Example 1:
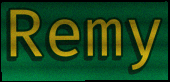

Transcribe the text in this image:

Remy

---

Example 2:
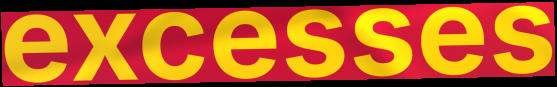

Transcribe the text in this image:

excesses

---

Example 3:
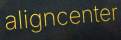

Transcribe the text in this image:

aligncenter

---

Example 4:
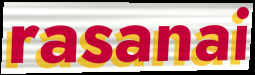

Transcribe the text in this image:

rasanai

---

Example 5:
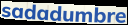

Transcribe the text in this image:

sadadumbre